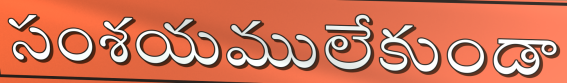
సంశయములేకుండా